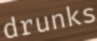
drunks